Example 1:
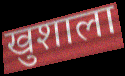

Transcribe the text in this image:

खुशाला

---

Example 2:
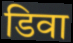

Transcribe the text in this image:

डिवा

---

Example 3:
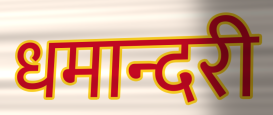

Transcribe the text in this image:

धमान्दरी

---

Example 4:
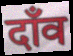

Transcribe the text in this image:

दाँव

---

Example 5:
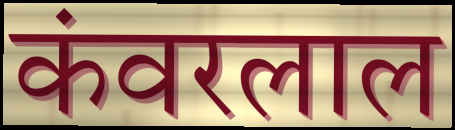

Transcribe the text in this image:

कंवरलाल